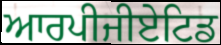
ਆਰਪੀਜੀਏਟਿਡ